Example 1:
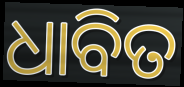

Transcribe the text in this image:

ଧାବିତ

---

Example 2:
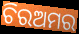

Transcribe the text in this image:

ଚିରଅମର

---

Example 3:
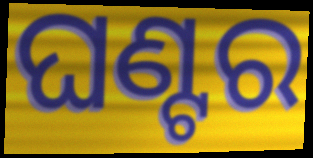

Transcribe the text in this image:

ଘଣ୍ଟର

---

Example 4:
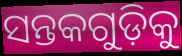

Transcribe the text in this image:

ସନ୍ତକଗୁଡ଼ିକୁ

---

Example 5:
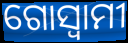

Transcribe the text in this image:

ଗୋସ୍ଵାମୀ